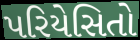
પરિયેસિતો